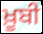
ਖ਼ੂਬੀ